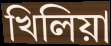
খিলিয়া